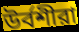
উর্বশীরা